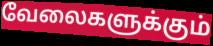
வேலைகளுக்கும்